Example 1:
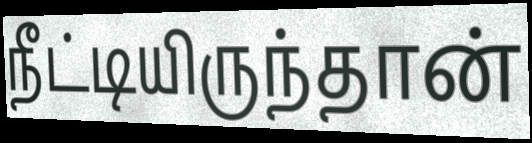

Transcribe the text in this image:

நீட்டியிருந்தான்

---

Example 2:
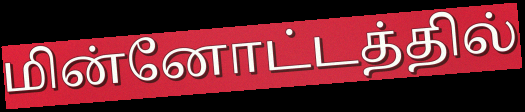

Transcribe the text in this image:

மின்னோட்டத்தில்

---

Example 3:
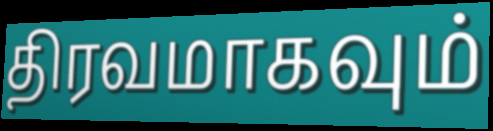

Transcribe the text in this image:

திரவமாகவும்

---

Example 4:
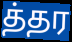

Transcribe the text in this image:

த்தர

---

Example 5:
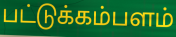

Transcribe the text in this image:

பட்டுக்கம்பளம்